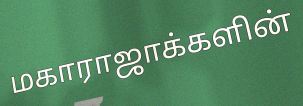
மகாராஜாக்களின்